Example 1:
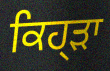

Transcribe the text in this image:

ਕਿਹ੍ੜਾ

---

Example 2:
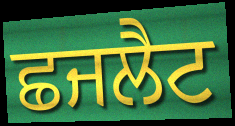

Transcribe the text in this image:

ਛਜਲੈਟ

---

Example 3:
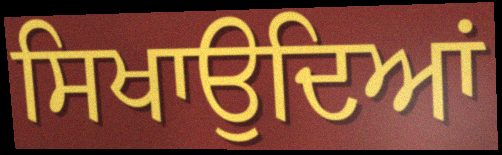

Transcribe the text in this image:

ਸਿਖਾਉਦਿਆਂ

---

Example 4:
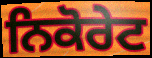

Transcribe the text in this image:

ਨਿਕੋਰੇਟ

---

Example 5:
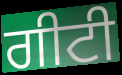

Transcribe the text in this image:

ਗੀਟੀ